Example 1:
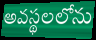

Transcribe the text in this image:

అవస్థలలోను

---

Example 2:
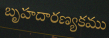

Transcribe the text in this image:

బృహదారణ్యకము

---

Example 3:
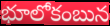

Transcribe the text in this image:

భూలోకంబున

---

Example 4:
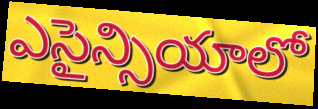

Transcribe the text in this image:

ఎసైన్సియాలో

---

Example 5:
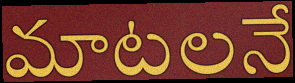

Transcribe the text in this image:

మాటలనే